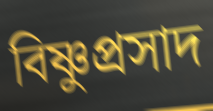
বিষ্ণুপ্রসাদ